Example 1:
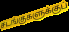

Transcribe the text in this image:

சடங்குகளுக்குப்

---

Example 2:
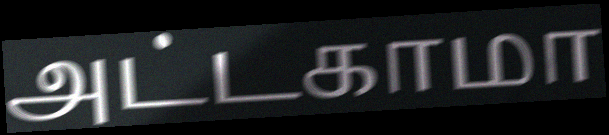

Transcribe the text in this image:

அட்டகாமா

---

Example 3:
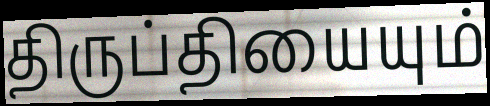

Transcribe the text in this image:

திருப்தியையும்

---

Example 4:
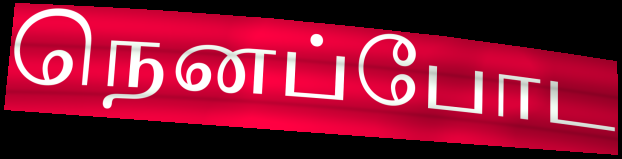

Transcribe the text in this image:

நெனப்போட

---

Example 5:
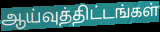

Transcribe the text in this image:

ஆய்வுத்திட்டங்கள்